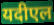
यदीएल